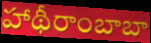
హాథీరాంబాబా